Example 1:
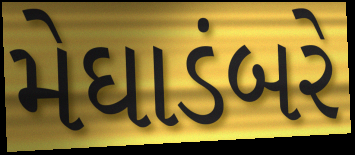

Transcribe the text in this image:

મેઘાડંબરે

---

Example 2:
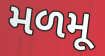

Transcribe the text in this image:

મળમૂ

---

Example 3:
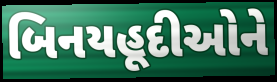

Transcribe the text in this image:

બિનયહૂદીઓને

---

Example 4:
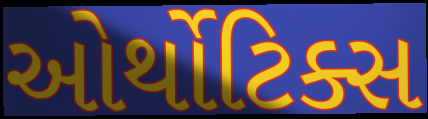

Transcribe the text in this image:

ઓર્થોટિક્સ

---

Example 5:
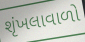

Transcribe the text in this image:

શૃંખલાવાળો